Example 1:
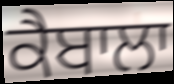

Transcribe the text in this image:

ਕੈਬਾਲਾ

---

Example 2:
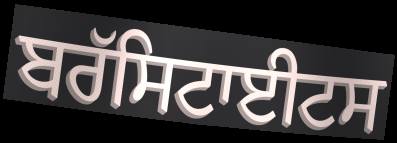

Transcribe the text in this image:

ਬਰੱਸਿਟਾਈਟਸ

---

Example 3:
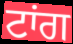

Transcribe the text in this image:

ਟਾਂਗ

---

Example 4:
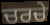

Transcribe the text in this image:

ਚਰਚੇ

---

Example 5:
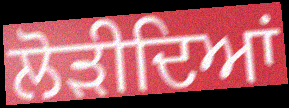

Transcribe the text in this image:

ਲੋੜੀਦਿਆਂ